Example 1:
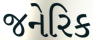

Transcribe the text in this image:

જનેરિક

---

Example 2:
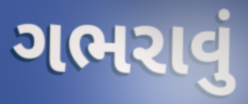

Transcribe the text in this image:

ગભરાવું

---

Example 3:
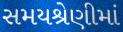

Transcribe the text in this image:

સમયશ્રેણીમાં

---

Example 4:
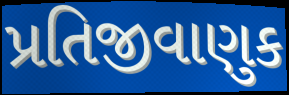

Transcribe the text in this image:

પ્રતિજીવાણુક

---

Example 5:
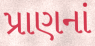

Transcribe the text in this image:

પ્રાણનાં